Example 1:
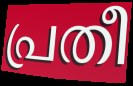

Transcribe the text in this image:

പ്രതീ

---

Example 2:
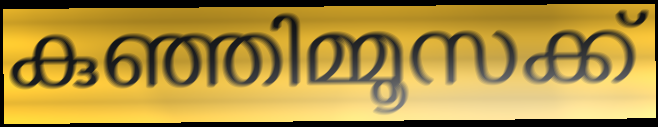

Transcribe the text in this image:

കുഞ്ഞിമ്മൂസക്ക്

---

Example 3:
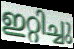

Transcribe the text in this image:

ഇറ്റിച്ചു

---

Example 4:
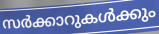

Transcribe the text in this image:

സർക്കാറുകൾക്കും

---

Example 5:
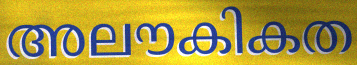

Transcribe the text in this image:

അലൗകികത